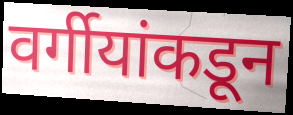
वर्गीयांकडून